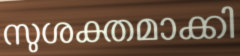
സുശക്തമാക്കി